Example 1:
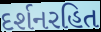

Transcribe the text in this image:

દર્શનરહિત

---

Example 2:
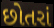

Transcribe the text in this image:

છોતરાં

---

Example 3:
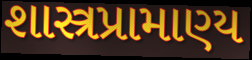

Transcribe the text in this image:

શાસ્ત્રપ્રામાણ્ય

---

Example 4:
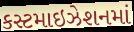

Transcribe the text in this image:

કસ્ટમાઇઝેશનમાં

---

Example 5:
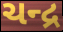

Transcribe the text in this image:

ચન્દ્ર